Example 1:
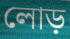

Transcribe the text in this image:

লোড়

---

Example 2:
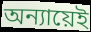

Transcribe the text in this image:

অন্যায়েই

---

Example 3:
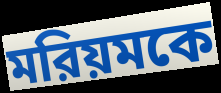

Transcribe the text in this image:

মরিয়মকে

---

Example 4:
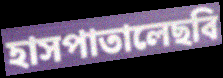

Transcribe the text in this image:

হাসপাতালেছবি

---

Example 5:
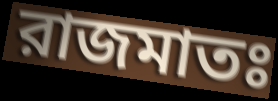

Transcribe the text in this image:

রাজমাতঃ